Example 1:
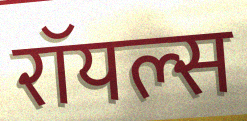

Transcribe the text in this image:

रॉयल्‍स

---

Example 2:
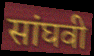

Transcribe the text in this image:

सांघवी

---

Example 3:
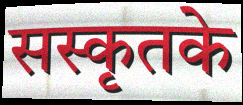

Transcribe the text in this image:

सस्कृतके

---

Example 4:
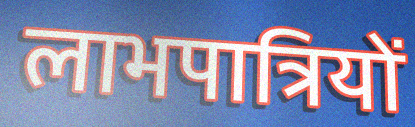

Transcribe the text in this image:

लाभपात्रियों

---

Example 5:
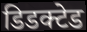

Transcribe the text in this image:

डिडक्टेड